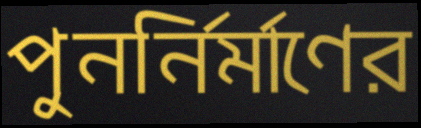
পুনর্নির্মাণের